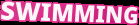
SWIMMING